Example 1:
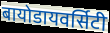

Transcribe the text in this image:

बायोडायवर्सिटी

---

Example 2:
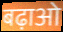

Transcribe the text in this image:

बढ़ाओ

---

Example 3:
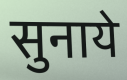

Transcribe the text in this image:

सुनाये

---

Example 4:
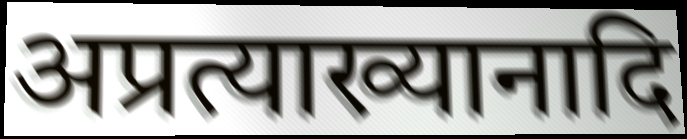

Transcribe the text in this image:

अप्रत्याख्यानादि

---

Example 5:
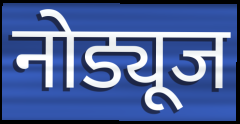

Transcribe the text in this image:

नोड्यूज